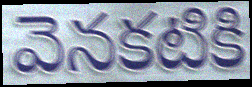
వెనకటికి